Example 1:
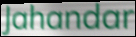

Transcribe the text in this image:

Jahandar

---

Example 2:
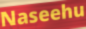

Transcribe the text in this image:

Naseehu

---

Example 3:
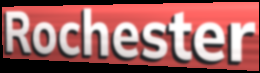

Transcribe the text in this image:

Rochester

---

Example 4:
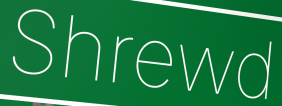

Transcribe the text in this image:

Shrewd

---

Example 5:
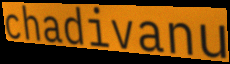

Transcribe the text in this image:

chadivanu